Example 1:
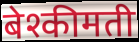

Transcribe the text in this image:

बेश्कीमती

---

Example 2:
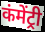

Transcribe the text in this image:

कंमेंट्री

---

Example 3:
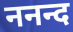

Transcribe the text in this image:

ननन्द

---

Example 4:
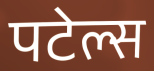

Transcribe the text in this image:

पटेल्स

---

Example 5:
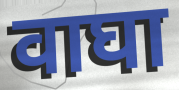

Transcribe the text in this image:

वाघा